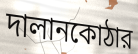
দালানকোঠার